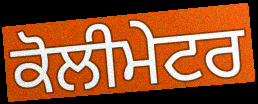
ਕੋਲੀਮੇਟਰ